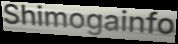
Shimogainfo